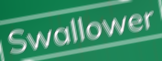
Swallower